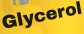
Glycerol